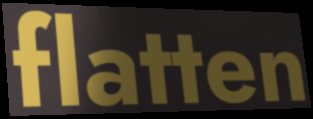
flatten